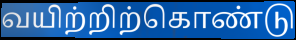
வயிற்றிற்கொண்டு